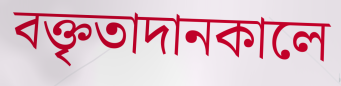
বক্তৃতাদানকালে